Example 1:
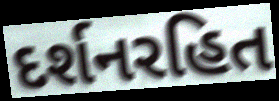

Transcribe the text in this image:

દર્શનરહિત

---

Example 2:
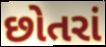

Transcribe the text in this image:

છોતરાં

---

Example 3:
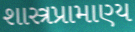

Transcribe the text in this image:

શાસ્ત્રપ્રામાણ્ય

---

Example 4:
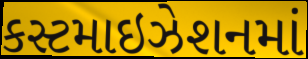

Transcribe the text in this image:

કસ્ટમાઇઝેશનમાં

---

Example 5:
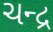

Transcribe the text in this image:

ચન્દ્ર